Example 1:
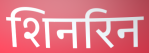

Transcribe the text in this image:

शिनरिन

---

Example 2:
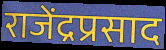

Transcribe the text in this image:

राजेंद्रप्रसाद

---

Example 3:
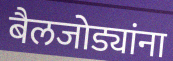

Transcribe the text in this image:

बैलजोड्यांना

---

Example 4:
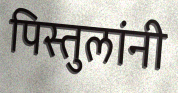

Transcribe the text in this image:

पिस्तुलांनी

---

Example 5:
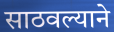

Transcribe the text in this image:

साठवल्याने